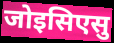
जोइसिएसु